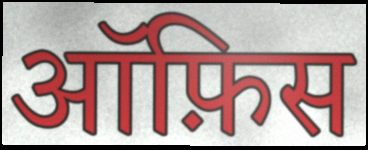
ऑफ़िस